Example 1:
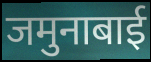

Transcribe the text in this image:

जमुनाबाई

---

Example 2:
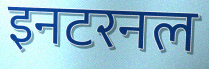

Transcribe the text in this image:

इनटरनल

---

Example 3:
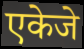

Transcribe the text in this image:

एकेजे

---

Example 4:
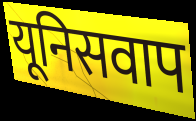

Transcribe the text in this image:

यूनिसवाप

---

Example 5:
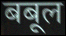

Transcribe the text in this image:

बबूल